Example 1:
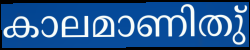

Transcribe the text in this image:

കാലമാണിതു്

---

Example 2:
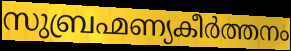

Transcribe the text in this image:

സുബ്രഹ്മണ്യകീർത്തനം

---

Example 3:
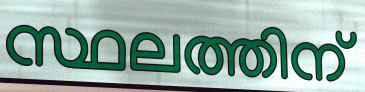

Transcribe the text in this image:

സ്ഥലത്തിന്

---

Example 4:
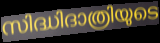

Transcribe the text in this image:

സിദ്ധിദാത്രിയുടെ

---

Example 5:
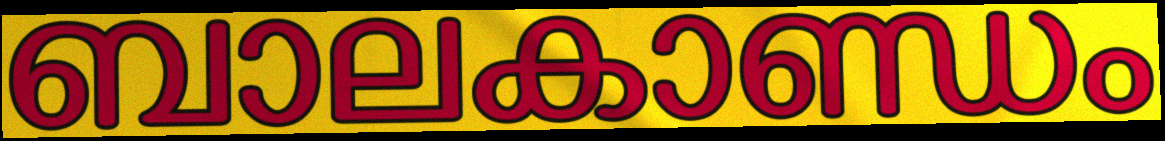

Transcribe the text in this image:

ബാലകാണ്ഡം